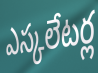
ఎస్కలేటర్ల